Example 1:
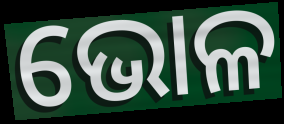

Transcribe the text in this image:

ଭୋଳ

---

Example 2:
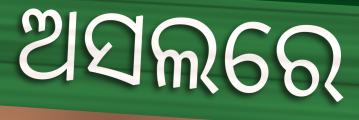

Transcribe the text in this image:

ଅସଲରେ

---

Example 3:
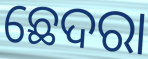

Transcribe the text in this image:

ଛେଦରା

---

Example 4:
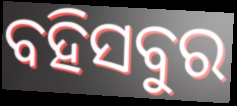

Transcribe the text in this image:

ବହିସବୁର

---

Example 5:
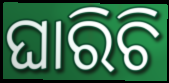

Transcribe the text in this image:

ଘାରିଚି